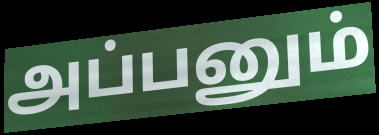
அப்பனும்